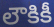
లౌకికీ